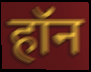
हॉन